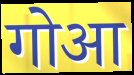
गोआ